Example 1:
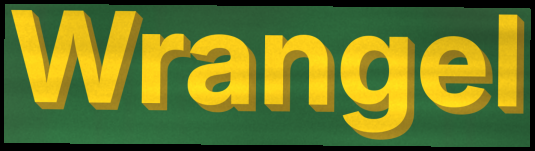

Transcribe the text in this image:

Wrangel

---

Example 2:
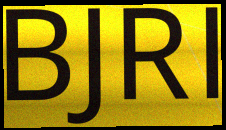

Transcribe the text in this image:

BJRI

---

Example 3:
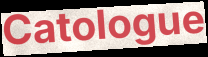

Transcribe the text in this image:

Catologue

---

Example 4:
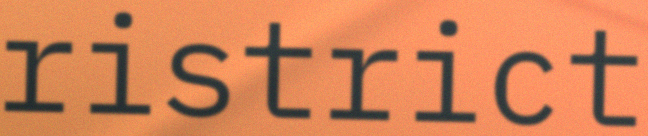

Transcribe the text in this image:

ristrict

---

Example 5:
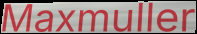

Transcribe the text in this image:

Maxmuller